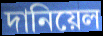
দানিয়েল